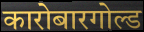
कारोबारगोल्ड